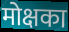
मोक्षका